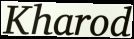
Kharod